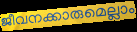
ജീവനക്കാരുമെല്ലാം